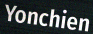
Yonchien